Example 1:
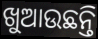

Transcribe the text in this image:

ଖୁଆଉଛନ୍ତି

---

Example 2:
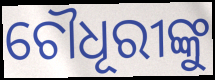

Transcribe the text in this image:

ଚୌଧୂରୀଙ୍କୁ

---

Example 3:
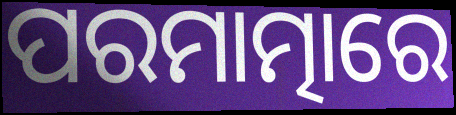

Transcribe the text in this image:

ପରମାତ୍ମାରେ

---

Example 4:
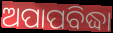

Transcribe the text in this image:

ଅପାପବିଦ୍ଧା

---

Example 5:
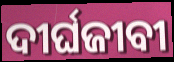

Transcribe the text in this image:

ଦୀର୍ଘଜୀବୀ